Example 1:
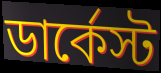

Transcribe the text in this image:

ডার্কেস্ট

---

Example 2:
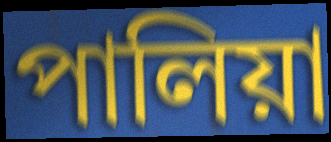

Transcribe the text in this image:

পালিয়া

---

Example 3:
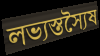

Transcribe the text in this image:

লভ্যস্তস্যৈষ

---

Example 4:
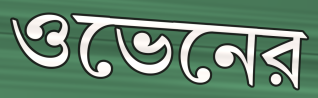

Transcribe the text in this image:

ওভেনের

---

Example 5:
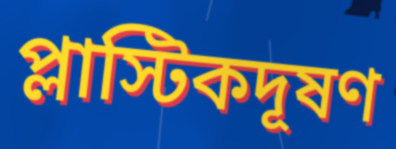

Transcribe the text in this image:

প্লাস্টিকদূষণ